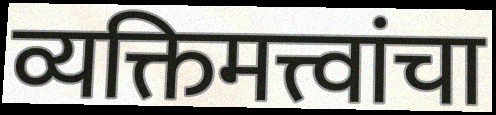
व्यक्तिमत्त्वांचा